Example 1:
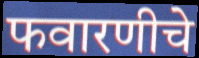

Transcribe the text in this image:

फवारणीचे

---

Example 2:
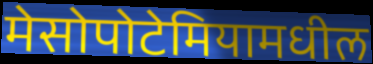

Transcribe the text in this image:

मेसोपोटेमियामधील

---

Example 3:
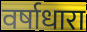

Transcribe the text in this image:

वर्षाधारा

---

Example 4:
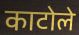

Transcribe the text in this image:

काटोले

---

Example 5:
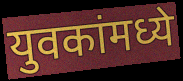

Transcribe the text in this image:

युवकांमध्ये